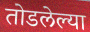
तोडलेल्या